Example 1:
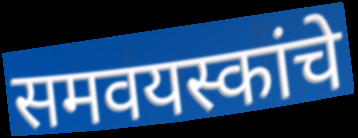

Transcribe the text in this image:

समवयस्कांचे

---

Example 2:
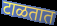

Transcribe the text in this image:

टाळतात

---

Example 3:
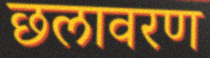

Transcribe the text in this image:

छलावरण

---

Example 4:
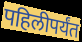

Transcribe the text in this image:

पहिलीपर्यंत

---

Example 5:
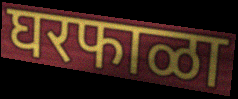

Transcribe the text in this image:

घरफाळा